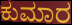
ಕುಮಾರ